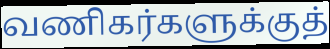
வணிகர்களுக்குத்